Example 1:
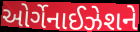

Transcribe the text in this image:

ઓર્ગેનાઈઝેશને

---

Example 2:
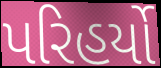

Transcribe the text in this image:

પરિહર્યો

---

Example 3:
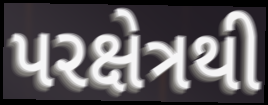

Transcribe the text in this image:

પરક્ષેત્રથી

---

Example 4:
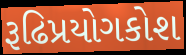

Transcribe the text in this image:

રૂઢિપ્રયોગકોશ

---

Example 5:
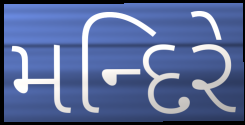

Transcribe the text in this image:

મન્દિરે